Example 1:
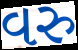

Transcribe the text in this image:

વરુ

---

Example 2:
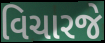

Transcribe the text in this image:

વિચારજે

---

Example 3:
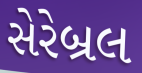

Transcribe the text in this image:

સેરેબ્રલ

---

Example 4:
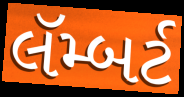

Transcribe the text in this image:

લૅમ્બર્ટ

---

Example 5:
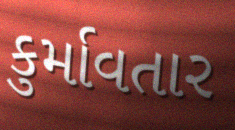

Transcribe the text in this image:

કુર્માવતાર